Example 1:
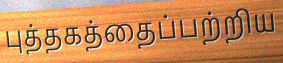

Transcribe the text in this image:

புத்தகத்தைப்பற்றிய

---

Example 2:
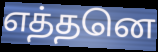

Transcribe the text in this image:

எத்தனெ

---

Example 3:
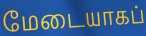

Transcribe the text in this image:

மேடையாகப்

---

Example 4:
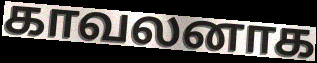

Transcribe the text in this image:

காவலனாக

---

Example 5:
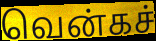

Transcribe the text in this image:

வென்கச்